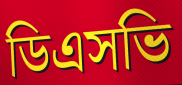
ডিএসভি